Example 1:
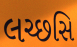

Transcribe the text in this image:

લચ્છસિ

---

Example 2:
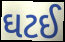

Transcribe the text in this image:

ઘટઈ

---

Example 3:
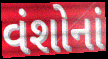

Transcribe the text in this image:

વંશોનાં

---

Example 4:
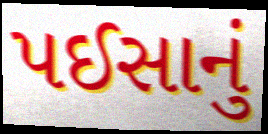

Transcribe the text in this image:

પઈસાનું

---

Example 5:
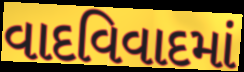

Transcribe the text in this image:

વાદવિવાદમાં